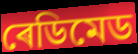
ৰেডিমেড